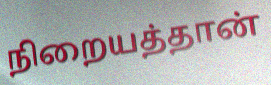
நிறையத்தான்